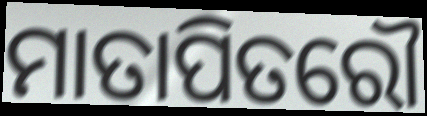
ମାତାପିତରୌ